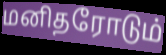
மனிதரோடும்